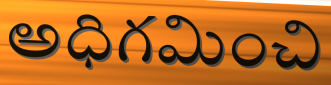
అధిగమించి